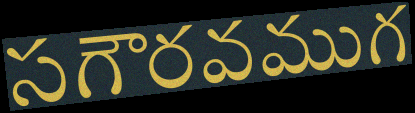
సగౌరవముగ